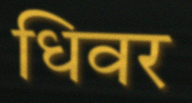
धिवर